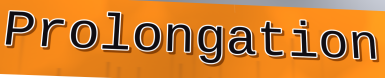
Prolongation